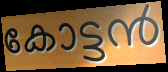
കോട്ടൻ